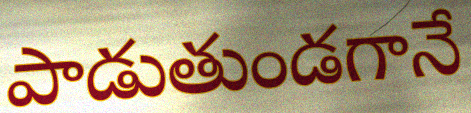
పాడుతుండగానే